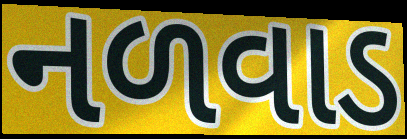
નળવાડ